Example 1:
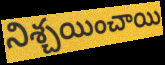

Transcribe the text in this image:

నిశ్చయించాయి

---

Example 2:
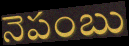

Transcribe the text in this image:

నెపంబు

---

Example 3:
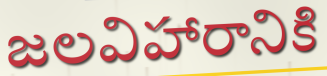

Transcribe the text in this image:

జలవిహారానికి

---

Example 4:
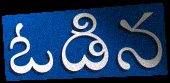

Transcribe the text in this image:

ఓడిన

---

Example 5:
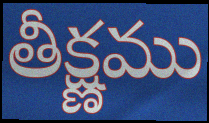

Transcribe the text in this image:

తీక్ష్ణము